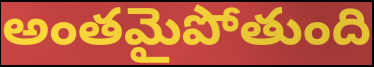
అంతమైపోతుంది